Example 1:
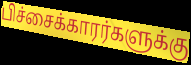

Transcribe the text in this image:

பிச்சைக்காரர்களுக்கு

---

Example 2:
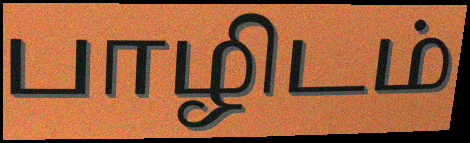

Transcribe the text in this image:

பாழிடம்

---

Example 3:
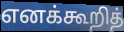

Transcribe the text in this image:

எனக்கூறித்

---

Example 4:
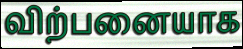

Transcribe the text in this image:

விற்பனையாக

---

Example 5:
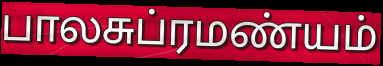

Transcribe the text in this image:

பாலசுப்ரமண்யம்